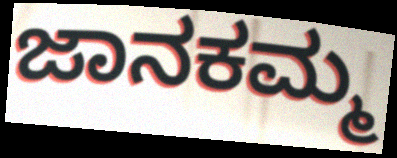
ಜಾನಕಮ್ಮ